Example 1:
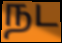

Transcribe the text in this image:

நட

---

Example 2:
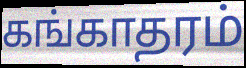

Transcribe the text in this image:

கங்காதரம்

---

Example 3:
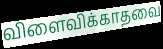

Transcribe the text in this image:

விளைவிக்காதவை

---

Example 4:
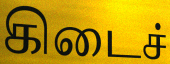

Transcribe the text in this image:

கிடைச்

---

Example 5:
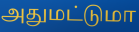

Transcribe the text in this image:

அதுமட்டுமா